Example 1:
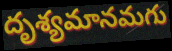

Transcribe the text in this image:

దృశ్యమానమగు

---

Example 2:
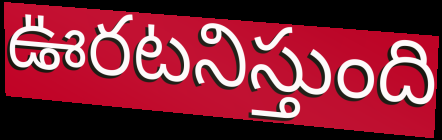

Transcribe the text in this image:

ఊరటనిస్తుంది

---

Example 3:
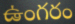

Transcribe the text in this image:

ఉంగరం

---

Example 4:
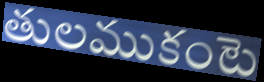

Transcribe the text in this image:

తులముకంటె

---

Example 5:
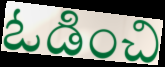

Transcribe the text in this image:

ఓడించి